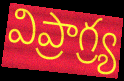
విప్రాగ్ర్య